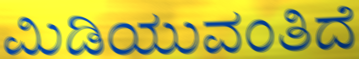
ಮಿಡಿಯುವಂತಿದೆ